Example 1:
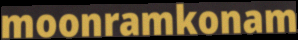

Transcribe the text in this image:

moonramkonam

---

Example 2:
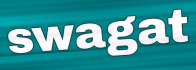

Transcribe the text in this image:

swagat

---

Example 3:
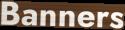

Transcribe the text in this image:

Banners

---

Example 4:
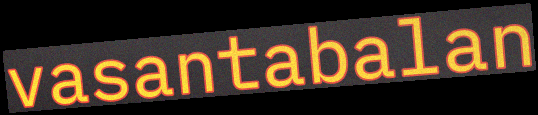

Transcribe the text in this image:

vasantabalan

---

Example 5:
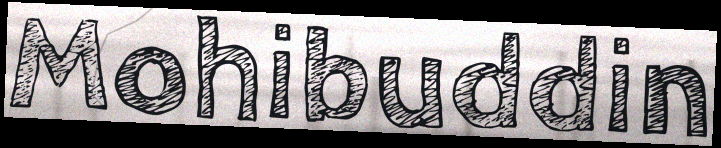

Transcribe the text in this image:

Mohibuddin